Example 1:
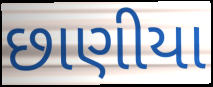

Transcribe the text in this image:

છાણીયા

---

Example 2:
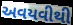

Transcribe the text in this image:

અવયવીથી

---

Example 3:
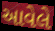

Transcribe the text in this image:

આવેલે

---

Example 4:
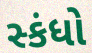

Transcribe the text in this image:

સ્કંધો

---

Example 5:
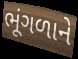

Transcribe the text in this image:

ભૂંગળાને